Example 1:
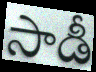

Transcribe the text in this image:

సాడీ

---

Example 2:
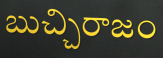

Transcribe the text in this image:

బుచ్చిరాజం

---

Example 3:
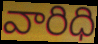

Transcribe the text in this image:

వారిధి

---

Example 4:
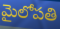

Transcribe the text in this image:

మైలోపతి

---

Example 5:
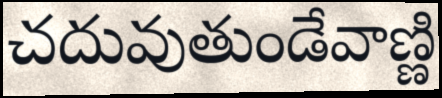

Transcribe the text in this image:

చదువుతుండేవాణ్ణి